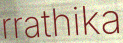
rrathika